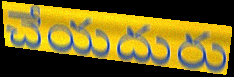
చేయదురు